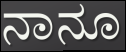
ನಾನೂ